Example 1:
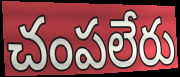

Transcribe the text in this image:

చంపలేరు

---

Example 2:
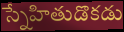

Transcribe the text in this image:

స్నేహితుడొకడు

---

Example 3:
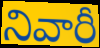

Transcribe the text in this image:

నివారీ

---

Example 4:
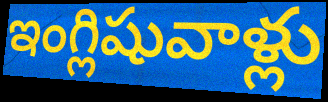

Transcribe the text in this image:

ఇంగ్లిషువాళ్లు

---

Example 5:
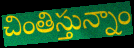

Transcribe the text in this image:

చింతిస్తున్నాం